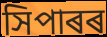
সিপাৰৰ